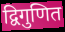
द्विगुणित